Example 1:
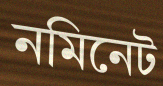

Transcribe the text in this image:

নমিনেট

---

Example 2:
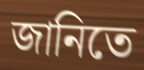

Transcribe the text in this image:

জানিতে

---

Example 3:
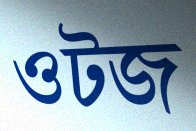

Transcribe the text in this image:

ওটজ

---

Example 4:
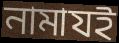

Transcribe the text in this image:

নামাযই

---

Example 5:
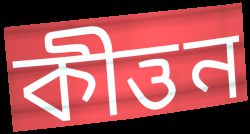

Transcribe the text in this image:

কীত্তন